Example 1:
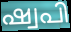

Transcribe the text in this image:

ഷ്വപി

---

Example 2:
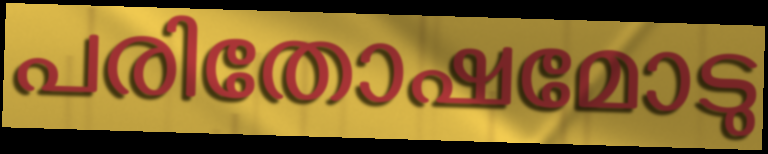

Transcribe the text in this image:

പരിതോഷമോടു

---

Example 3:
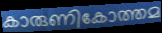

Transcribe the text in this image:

കാരുണികോത്തമ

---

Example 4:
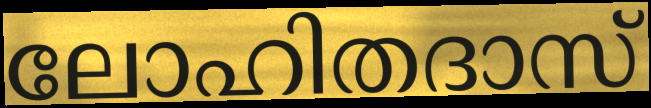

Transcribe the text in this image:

ലോഹിതദാസ്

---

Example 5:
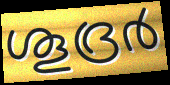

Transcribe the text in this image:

ശൂദ്രർ